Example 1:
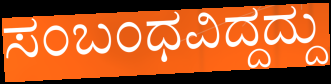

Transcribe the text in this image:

ಸಂಬಂಧವಿದ್ದದ್ದು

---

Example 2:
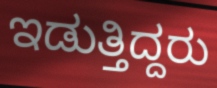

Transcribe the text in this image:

ಇಡುತ್ತಿದ್ದರು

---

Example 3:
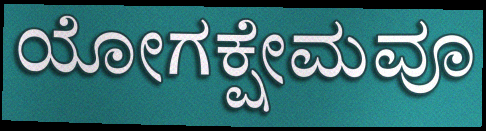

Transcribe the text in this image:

ಯೋಗಕ್ಷೇಮವೂ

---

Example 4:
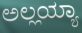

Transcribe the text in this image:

ಅಲ್ಲಯ್ಯಾ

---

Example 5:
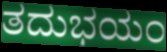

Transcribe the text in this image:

ತದುಭಯಂ